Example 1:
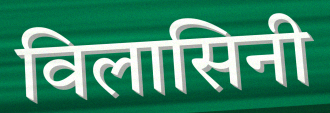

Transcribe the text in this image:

विलासिनी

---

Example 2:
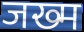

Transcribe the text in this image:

जख्म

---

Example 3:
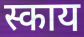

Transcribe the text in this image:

स्काय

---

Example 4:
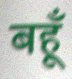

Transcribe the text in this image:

बहूँ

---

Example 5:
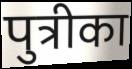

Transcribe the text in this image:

पुत्रीका